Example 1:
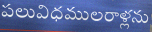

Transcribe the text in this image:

పలువిధములరాళ్లను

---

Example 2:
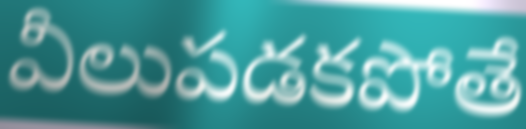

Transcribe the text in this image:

వీలుపడకపోతే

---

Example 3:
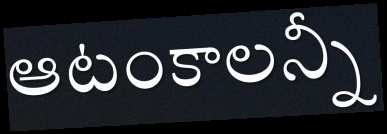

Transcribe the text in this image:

ఆటంకాలన్నీ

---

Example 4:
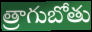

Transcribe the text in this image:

త్రాగుబోతు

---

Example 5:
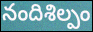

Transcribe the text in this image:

నందిశిల్పం